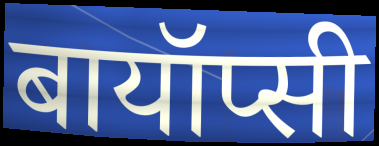
बायॉप्सी